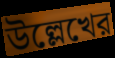
উল্লেখের